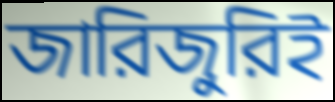
জারিজুরিই